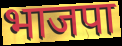
भाजपा